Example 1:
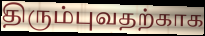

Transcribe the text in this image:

திரும்புவதற்காக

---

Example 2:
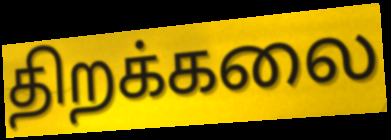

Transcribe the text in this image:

திறக்கலை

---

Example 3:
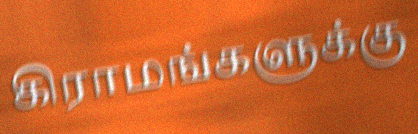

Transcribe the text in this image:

கிராமங்களுக்கு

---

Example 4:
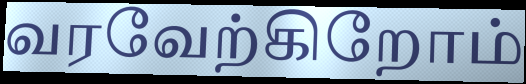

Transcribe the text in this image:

வரவேற்கிறோம்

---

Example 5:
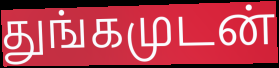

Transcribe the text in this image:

துங்கமுடன்